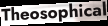
Theosophical